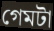
গেমটা